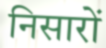
निसारों